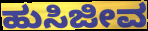
ಹುಸಿಜೀವ